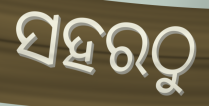
ସହରଠୁ